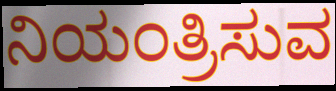
ನಿಯಂತ್ರಿಸುವ